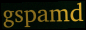
gspamd